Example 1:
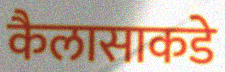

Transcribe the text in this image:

कैलासाकडे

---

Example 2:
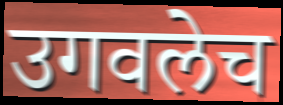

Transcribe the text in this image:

उगवलेच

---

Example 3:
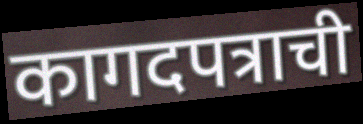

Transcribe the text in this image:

कागदपत्राची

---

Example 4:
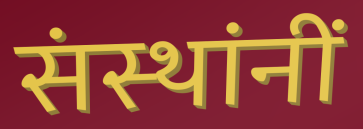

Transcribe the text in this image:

संस्थांनीं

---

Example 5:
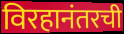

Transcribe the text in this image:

विरहानंतरची